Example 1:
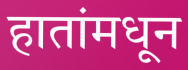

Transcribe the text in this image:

हातांमधून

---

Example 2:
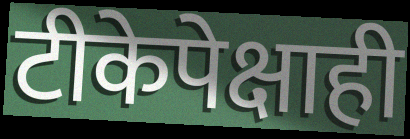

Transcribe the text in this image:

टीकेपेक्षाही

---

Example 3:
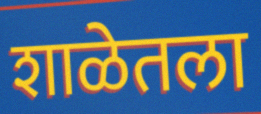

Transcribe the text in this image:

शाळेतला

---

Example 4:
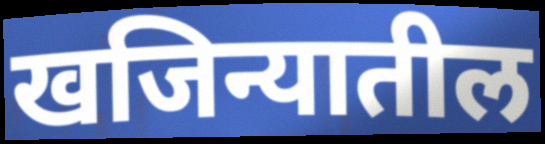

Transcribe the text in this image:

खजिन्यातील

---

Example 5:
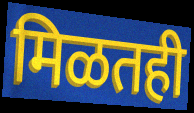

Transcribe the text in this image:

मिळतही